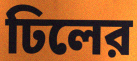
ঢিলের